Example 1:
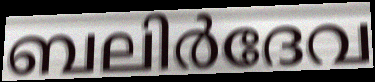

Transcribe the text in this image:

ബലിർദേവ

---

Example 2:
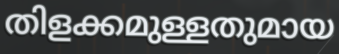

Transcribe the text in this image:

തിളക്കമുള്ളതുമായ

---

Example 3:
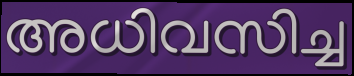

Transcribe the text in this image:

അധിവസിച്ച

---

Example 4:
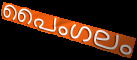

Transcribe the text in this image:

പൈംഗലം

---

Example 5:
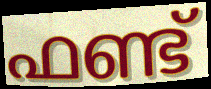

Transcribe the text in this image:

ഫണ്ട്